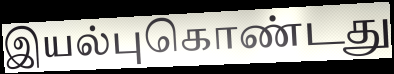
இயல்புகொண்டது